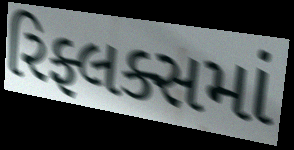
રિફ્લક્સમાં